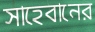
সাহেবানের